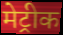
मेट्रीक